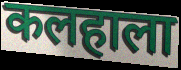
कलहाला